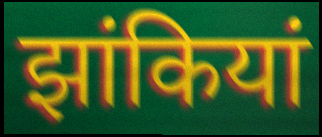
झांकियां